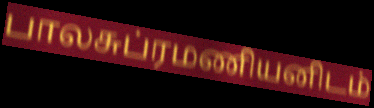
பாலசுப்ரமணியனிடம்